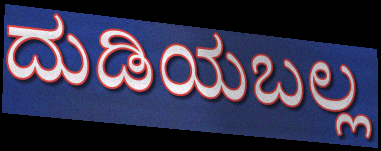
ದುಡಿಯಬಲ್ಲ